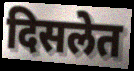
दिसलेत